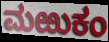
ಮಱುಕಂ